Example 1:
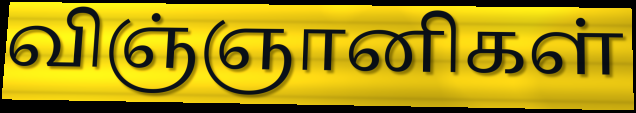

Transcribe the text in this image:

விஞ்ஞானிகள்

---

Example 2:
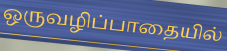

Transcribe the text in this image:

ஒருவழிப்பாதையில்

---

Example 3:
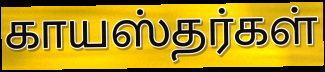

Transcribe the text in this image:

காயஸ்தர்கள்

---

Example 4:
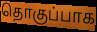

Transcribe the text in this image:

தொகுப்பாக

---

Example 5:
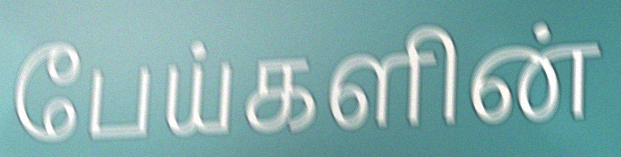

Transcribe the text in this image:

பேய்களின்